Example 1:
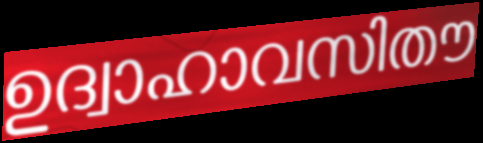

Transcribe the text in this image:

ഉദ്വാഹാവസിതൗ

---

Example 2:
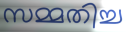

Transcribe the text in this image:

സമ്മതിച്ച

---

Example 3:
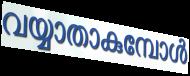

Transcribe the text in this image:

വയ്യാതാകുമ്പോൾ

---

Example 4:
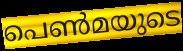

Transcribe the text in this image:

പെൺമയുടെ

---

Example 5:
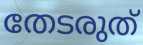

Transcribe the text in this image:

തേടരുത്